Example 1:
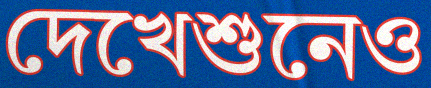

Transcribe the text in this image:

দেখেশুনেও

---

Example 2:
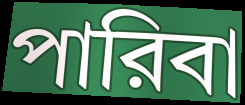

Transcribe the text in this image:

পারিবা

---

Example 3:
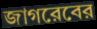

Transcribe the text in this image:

জাগরেবের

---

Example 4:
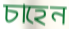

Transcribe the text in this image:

চাহেন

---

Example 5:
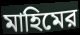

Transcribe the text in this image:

মাহিমের